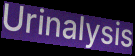
Urinalysis